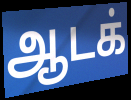
ஆடக்